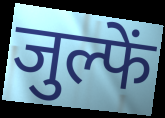
जुल्फें